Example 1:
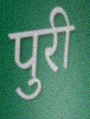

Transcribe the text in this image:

पुरी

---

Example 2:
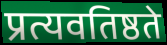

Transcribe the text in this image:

प्रत्यवतिष्ठते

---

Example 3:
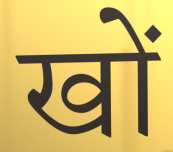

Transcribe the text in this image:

खों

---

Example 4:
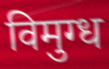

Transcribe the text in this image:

विमुग्ध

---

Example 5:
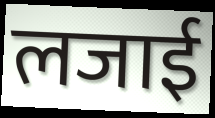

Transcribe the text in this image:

लजाई